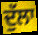
ਦੁੱਲਾ